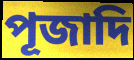
পূজাদি